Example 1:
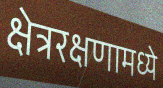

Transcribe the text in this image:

क्षेत्ररक्षणामध्ये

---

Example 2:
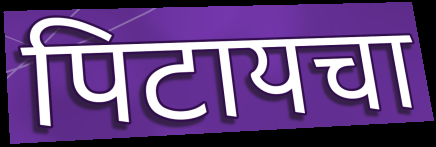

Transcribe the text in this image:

पिटायचा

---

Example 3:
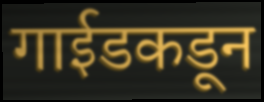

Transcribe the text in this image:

गाईडकडून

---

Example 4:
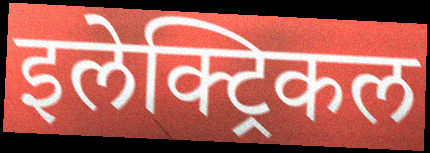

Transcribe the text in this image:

इलेक्ट्रिकल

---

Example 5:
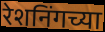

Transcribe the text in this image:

रेशनिंगच्या